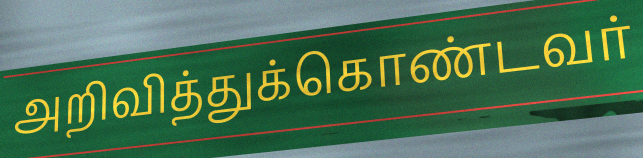
அறிவித்துக்கொண்டவர்